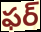
ఫర్